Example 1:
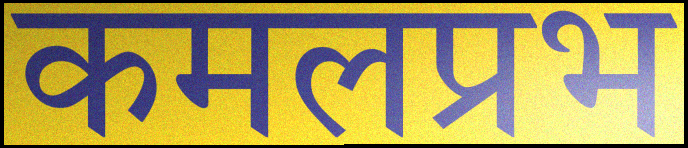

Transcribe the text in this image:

कमलप्रभ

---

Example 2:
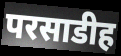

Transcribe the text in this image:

परसाडीह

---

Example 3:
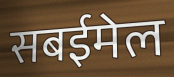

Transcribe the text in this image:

सबईमेल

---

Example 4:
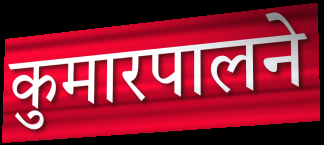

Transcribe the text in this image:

कुमारपालने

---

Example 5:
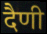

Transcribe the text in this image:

दैणी